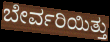
ಬೇರ್ವರಿಯಿತ್ತು